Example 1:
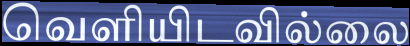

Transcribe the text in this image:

வெளியிடவில்லை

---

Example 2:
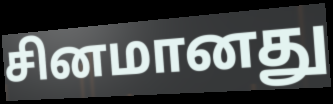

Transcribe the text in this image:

சினமானது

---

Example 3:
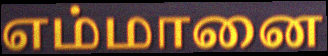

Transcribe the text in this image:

எம்மானை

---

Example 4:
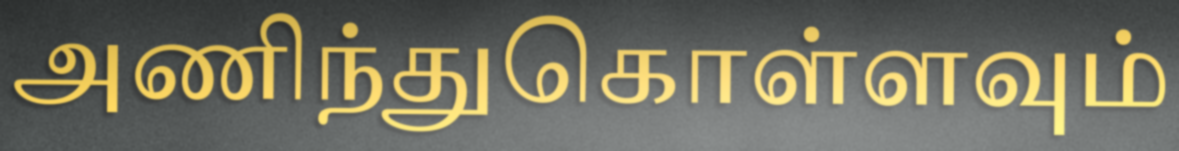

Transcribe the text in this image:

அணிந்துகொள்ளவும்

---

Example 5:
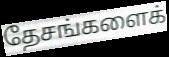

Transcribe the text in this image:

தேசங்களைக்